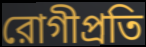
রোগীপ্রতি